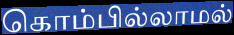
கொம்பில்லாமல்